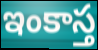
ఇంకాస్త